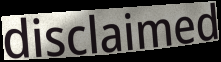
disclaimed